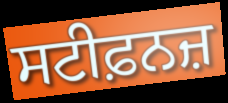
ਸਟੀਫ਼ਨਜ਼